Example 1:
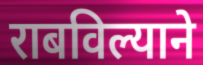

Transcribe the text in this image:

राबविल्याने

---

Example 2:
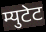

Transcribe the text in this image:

म्युटेट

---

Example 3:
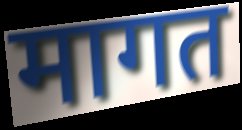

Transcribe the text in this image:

मागत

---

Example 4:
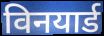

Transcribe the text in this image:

विनयार्ड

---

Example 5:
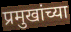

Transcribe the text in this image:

प्रमुखांच्या